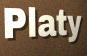
Platy